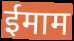
ईमाम